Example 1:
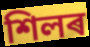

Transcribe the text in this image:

শিলৰ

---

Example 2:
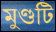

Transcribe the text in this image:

মুণ্ডটি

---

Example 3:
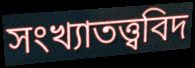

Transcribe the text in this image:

সংখ্যাতত্ত্ববিদ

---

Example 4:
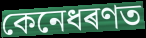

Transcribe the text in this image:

কেনেধৰণত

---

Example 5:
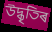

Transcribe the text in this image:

উদ্ধৃতিৰ